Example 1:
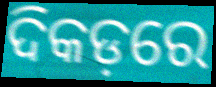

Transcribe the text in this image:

ଦିକଡ଼ରେ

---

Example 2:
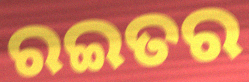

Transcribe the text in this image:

ରଇତର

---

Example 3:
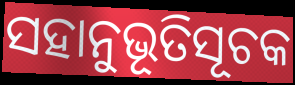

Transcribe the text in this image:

ସହାନୁଭୂତିସୂଚକ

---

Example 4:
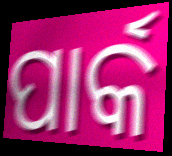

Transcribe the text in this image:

ପାର୍କ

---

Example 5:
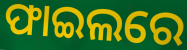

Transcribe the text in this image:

ଫାଇଲରେ